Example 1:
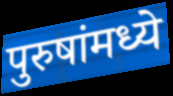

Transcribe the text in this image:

पुरुषांमध्ये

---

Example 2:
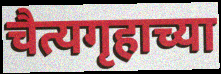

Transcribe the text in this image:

चैत्यगृहाच्या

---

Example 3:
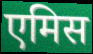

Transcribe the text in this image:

एमिस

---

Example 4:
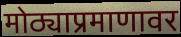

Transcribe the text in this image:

मोठ्याप्रमाणावर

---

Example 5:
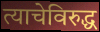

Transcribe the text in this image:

त्याचेविरुद्ध